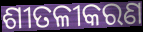
ଶୀତଳୀକରଣ